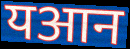
यआन